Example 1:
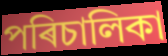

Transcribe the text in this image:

পৰিচালিকা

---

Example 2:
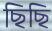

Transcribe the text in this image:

ছিছি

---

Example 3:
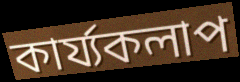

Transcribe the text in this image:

কাৰ্য্যকলাপ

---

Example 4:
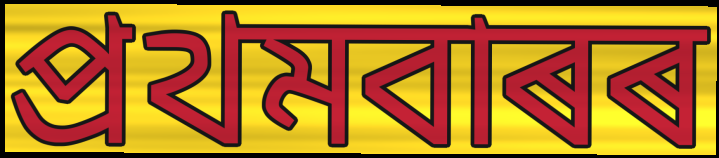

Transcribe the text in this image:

প্ৰথমবাৰৰ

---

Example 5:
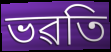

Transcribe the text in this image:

ভৱতি